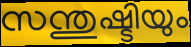
സന്തുഷ്ടിയും